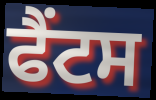
ਫੈਂਟਸ